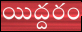
యిద్దరం